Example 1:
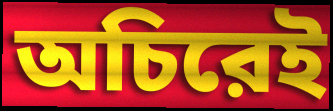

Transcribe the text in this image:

অচিরেই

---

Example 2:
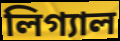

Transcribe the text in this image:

লিগ্যাল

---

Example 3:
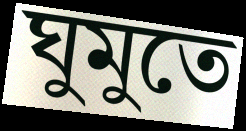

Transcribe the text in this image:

ঘুমুতে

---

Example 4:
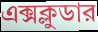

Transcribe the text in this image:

এক্সক্লুডার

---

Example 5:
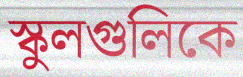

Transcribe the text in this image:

স্কুলগুলিকে